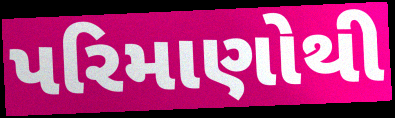
પરિમાણોથી